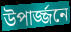
উপার্জ্জনে